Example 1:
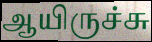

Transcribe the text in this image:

ஆயிருச்சு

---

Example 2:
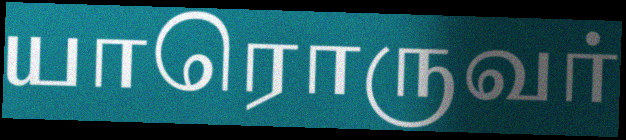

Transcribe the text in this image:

யாரொருவர்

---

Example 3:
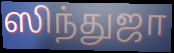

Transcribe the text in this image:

ஸிந்துஜா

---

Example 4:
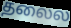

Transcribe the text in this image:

தலைல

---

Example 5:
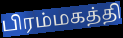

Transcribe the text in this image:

பிரம்மகத்தி